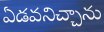
ఏడవనిచ్చాను